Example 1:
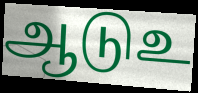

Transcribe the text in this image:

ஆடுஉ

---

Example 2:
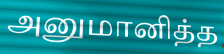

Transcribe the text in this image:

அனுமானித்த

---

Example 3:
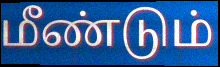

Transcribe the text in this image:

மீண்டும்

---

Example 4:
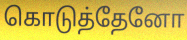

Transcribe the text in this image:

கொடுத்தேனோ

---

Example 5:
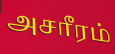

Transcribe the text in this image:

அசரீரம்